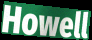
Howell